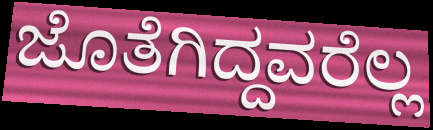
ಜೊತೆಗಿದ್ದವರೆಲ್ಲ